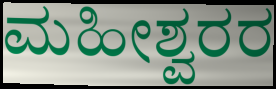
ಮಹೀಶ್ವರರ